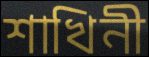
শাখিনী